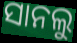
ସାନଲୁ